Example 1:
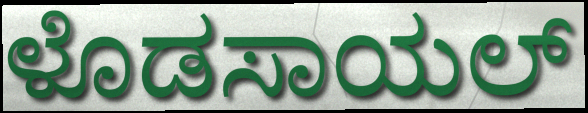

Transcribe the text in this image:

ಳೊಡಸಾಯಲ್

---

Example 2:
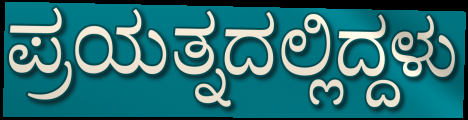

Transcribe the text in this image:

ಪ್ರಯತ್ನದಲ್ಲಿದ್ದಳು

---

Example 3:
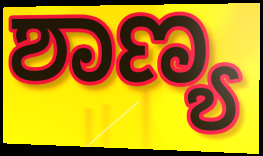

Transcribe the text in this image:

ಶಾಣ್ಯ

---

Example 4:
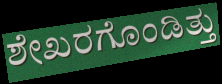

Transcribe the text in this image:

ಶೇಖರಗೊಂಡಿತ್ತು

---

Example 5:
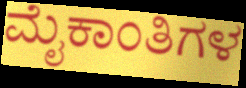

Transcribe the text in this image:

ಮೈಕಾಂತಿಗಳ